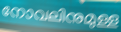
നോവലിനുമുള്ള